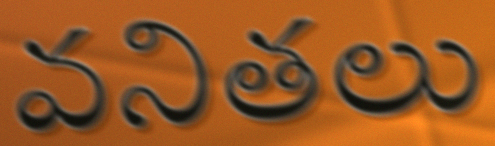
వనితలు